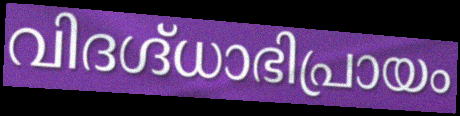
വിദഗ്ദ്ധാഭിപ്രായം